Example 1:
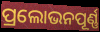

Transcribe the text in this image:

ପ୍ରଲୋଭନପୂର୍ଣ୍ଣ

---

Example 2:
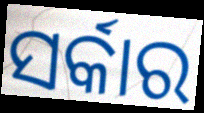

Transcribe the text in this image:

ସର୍କାର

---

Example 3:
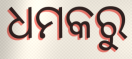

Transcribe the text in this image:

ଧମକରୁ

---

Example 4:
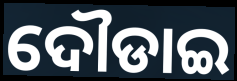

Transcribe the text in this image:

ଦୌଡାଇ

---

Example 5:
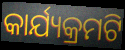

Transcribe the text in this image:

କାର୍ଯ୍ୟକ୍ରମଟି